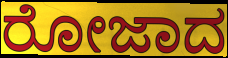
ರೋಜಾದ